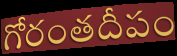
గోరంతదీపం